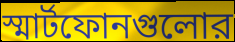
স্মার্টফোনগুলোর